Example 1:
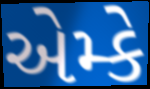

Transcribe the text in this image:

એમ્કે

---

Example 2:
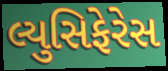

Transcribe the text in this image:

લ્યુસિફેરેસ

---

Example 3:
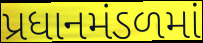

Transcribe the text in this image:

પ્રધાનમંડળમાં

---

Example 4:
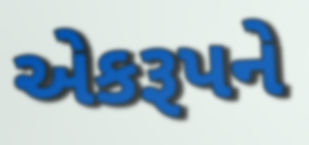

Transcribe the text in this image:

એકરૂપને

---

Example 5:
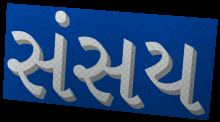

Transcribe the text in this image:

સંસય